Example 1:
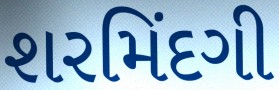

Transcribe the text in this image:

શરમિંદગી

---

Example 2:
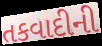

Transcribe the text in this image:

તકવાદીની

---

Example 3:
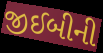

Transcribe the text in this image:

જીઈબીની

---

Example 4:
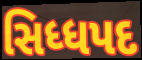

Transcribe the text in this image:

સિધ્ધપદ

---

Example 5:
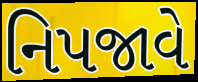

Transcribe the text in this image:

નિપજાવે